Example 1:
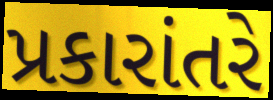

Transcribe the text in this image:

પ્રકારાંતરે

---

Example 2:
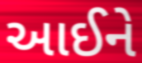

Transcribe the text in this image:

આઈને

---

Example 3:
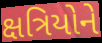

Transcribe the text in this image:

ક્ષત્રિયોને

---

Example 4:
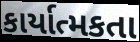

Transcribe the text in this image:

કાર્યાત્મકતા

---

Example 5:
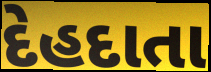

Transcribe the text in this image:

દેહદાતા